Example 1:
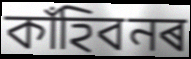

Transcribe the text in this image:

কাঁহিবনৰ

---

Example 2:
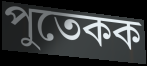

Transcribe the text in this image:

পুতেকক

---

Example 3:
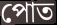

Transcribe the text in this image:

পোত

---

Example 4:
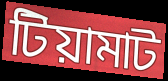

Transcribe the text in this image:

টিয়ামাট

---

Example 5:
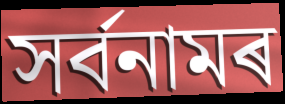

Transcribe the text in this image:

সৰ্বনামৰ